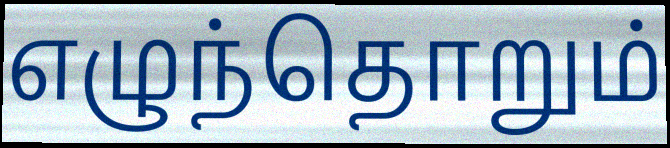
எழுந்தொறும்